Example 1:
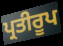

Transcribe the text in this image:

ਪ੍ਰਤੀਰੂਪ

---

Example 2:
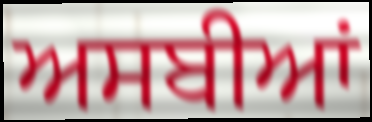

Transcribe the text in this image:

ਅਸਬੀਆਂ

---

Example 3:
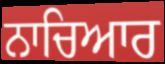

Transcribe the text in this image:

ਨਾਚਿਆਰ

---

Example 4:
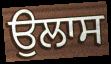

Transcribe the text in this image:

ਉਲਾਸ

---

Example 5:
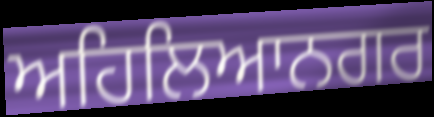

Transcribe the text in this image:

ਅਹਿਲਿਆਨਗਰ